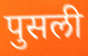
पुसली